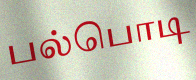
பல்பொடி